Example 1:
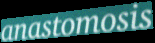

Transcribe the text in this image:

anastomosis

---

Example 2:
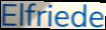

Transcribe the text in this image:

Elfriede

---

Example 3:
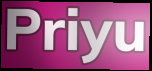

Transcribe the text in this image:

Priyu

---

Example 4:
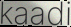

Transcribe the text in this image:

kaadi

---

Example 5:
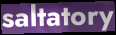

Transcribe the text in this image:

saltatory